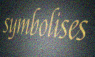
symbolises